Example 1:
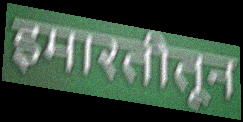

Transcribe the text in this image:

इमारतीतून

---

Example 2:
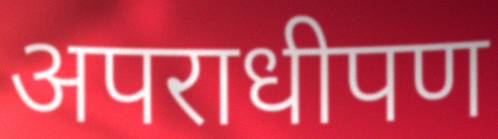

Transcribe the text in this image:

अपराधीपण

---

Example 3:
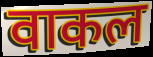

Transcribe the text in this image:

वाकल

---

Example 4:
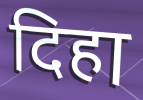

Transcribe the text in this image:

दिहा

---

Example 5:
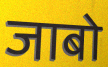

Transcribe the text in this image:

जाबो